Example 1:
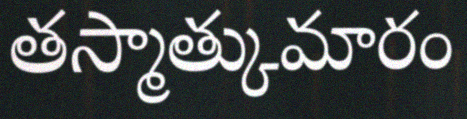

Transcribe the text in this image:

తస్మాత్కుమారం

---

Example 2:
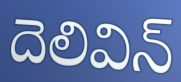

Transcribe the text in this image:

దెలివిన్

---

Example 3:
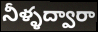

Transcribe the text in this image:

నీళ్ళద్వారా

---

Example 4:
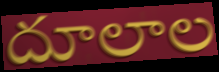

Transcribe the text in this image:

దూలాల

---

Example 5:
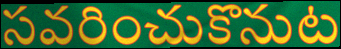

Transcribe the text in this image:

సవరించుకొనుట